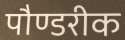
पौण्डरीक